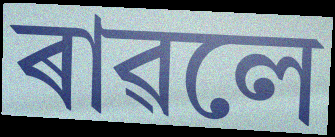
ৰাৱলে